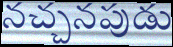
నచ్చనపుడు